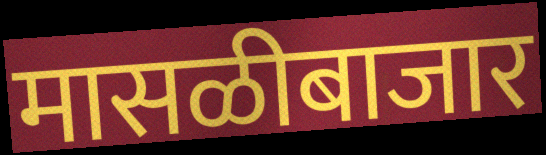
मासळीबाजार